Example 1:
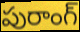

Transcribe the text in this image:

పురాంగ్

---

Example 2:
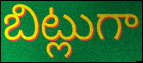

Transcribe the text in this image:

బిట్లుగా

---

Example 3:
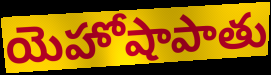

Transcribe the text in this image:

యెహోషాపాతు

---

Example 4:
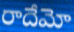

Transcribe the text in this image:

రాదేమో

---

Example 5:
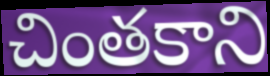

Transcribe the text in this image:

చింతకాని